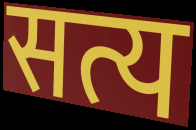
सत्य